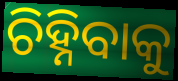
ଚିହ୍ନିବାକୁ